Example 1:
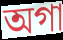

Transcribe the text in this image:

অগা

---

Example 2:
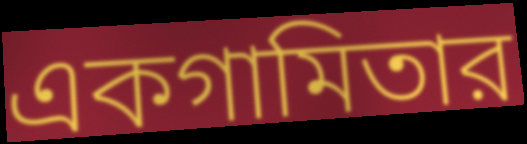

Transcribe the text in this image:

একগামিতার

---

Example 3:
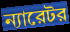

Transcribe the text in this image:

ন্যারেটর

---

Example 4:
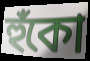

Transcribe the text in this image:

হুঁকো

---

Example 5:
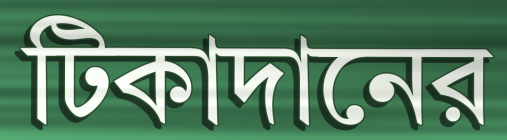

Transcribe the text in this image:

টিকাদানের